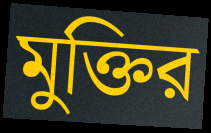
মুক্তির